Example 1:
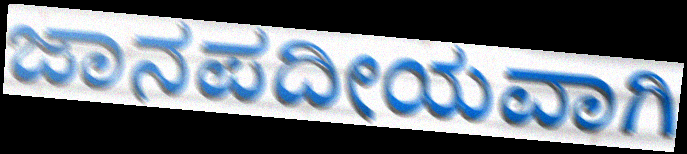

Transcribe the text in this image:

ಜಾನಪದೀಯವಾಗಿ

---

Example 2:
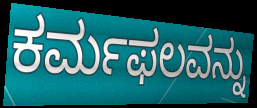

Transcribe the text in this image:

ಕರ್ಮಫಲವನ್ನು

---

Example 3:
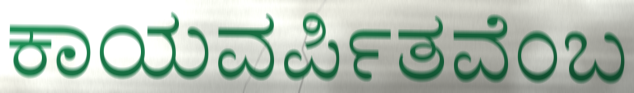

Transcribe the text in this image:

ಕಾಯವರ್ಪಿತವೆಂಬ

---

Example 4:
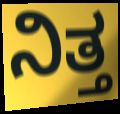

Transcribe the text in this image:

ನಿತ್ತ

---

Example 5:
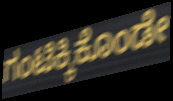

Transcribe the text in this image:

ಗಂಟಿಕ್ಕಿಕೊಂಡೇ